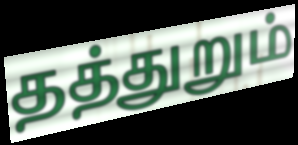
தத்துறும்